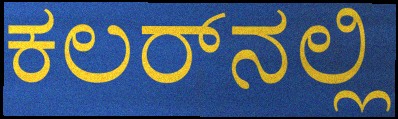
ಕಲರ್‌ನಲ್ಲಿ